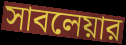
সাবলেয়ার